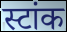
स्टांक